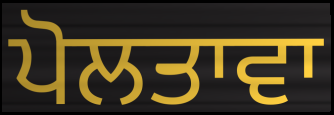
ਪੋਲਤਾਵਾ